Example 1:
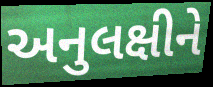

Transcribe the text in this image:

અનુલક્ષીને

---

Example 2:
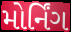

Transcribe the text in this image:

મોર્નિંગ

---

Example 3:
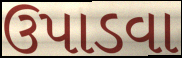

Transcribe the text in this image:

ઉપાડવા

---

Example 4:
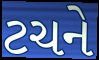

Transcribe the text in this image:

ટચને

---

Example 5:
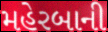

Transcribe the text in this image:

મહેરબાની